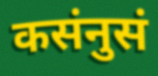
कसंनुसं